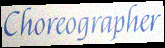
Choreographer